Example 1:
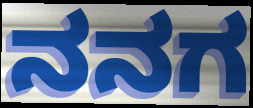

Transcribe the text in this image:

ನನಗ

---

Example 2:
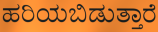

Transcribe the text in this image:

ಹರಿಯಬಿಡುತ್ತಾರೆ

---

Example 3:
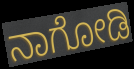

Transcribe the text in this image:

ನಾಗೋಡಿ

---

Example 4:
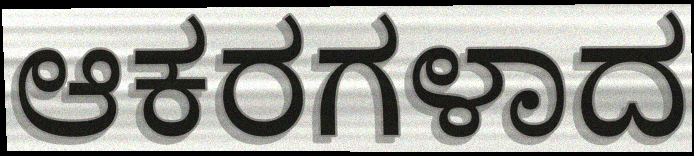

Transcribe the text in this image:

ಆಕರಗಳಾದ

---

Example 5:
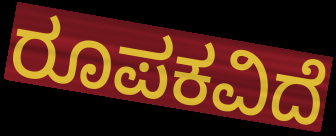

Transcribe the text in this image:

ರೂಪಕವಿದೆ